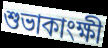
শুভাকাংক্ষী